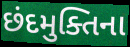
છંદમુક્તિના